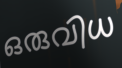
ഒരുവിധ